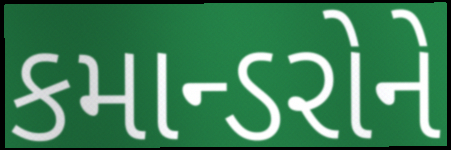
કમાન્ડરોને